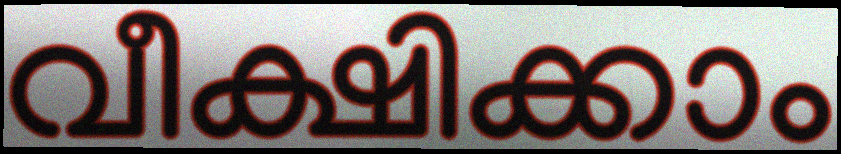
വീക്ഷിക്കാം